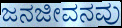
ಜನಜೀವನವು